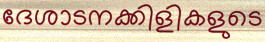
ദേശാടനക്കിളികളുടെ